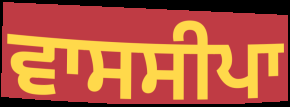
ਵਾਸਸੀਪਾ